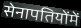
सेनापतियोंमें